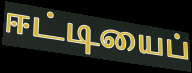
ஈட்டியைப்